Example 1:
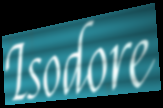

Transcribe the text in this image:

Isodore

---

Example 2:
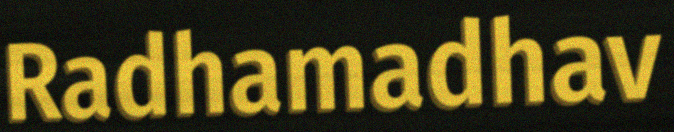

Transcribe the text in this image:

Radhamadhav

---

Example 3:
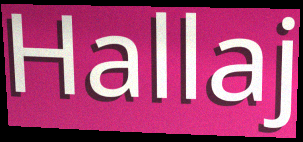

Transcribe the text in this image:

Hallaj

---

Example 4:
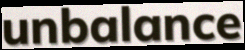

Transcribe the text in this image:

unbalance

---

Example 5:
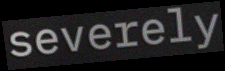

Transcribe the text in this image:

severely